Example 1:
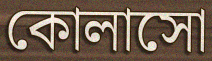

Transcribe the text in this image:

কোলাসো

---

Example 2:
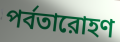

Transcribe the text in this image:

পর্বতারোহণ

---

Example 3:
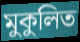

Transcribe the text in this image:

মুকুলিত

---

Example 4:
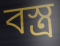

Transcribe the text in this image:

বস্ত্র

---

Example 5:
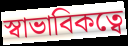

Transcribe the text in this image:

স্বাভাবিকত্বে